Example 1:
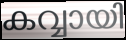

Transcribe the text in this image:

കവ്വായി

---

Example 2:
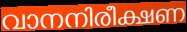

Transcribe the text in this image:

വാനനിരീക്ഷണ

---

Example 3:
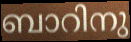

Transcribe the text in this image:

ബാറിനു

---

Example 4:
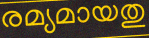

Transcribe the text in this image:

രമ്യമായതു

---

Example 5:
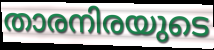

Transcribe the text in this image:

താരനിരയുടെ